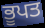
ਭੂਪਤ